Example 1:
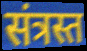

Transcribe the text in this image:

संत्रस्त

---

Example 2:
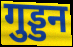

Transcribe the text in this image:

गुड्डन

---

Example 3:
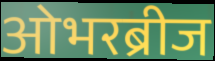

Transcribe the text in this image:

ओभरब्रीज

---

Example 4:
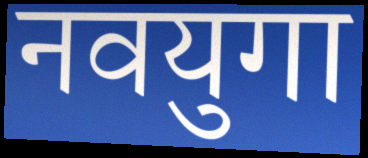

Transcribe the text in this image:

नवयुगा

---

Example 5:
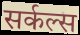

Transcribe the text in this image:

सर्कल्स